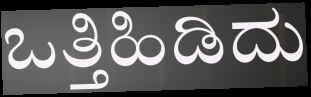
ಒತ್ತಿಹಿಡಿದು